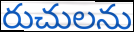
రుచులను